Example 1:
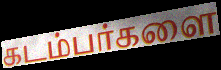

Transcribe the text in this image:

கடம்பர்களை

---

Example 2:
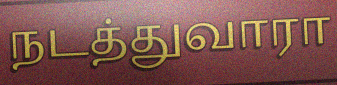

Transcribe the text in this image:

நடத்துவாரா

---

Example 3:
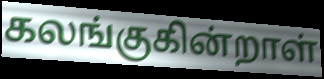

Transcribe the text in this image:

கலங்குகின்றாள்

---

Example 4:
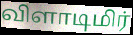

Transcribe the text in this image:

விளாடிமிர்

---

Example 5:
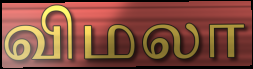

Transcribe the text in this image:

விமலா